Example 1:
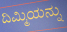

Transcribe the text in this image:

ದಿಮ್ಮಿಯನ್ನು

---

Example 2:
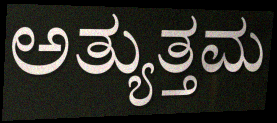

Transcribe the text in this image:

ಅತ್ಯುತ್ತಮ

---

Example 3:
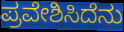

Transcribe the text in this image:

ಪ್ರವೇಶಿಸಿದೆನು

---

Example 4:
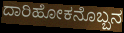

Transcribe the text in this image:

ದಾರಿಹೋಕನೊಬ್ಬನ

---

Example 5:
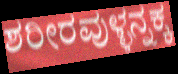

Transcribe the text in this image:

ಶರೀರವುಳ್ಳನ್ನಕ್ಕ